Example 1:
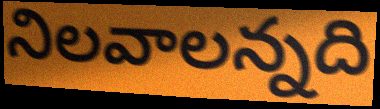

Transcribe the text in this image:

నిలవాలన్నది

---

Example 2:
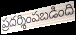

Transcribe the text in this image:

ప్రదర్శింపబడింది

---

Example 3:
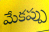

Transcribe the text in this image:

మేకప్పు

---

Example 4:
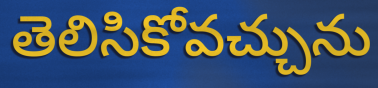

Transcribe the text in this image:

తెలిసికోవచ్చును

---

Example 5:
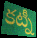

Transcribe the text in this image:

కట్నీ